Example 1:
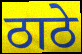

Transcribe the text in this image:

ठाठे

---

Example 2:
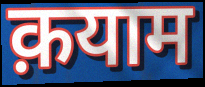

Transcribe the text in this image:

क़याम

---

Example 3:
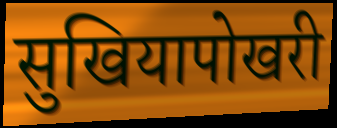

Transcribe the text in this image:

सुखियापोखरी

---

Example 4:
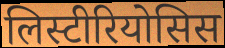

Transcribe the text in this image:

लिस्टीरियोसिस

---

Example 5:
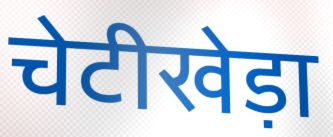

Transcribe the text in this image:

चेटीखेड़ा